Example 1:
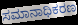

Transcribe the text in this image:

ಸಮಾನಾಧಿಕರಣ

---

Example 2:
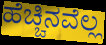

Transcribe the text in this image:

ಹೆಚ್ಚಿನವೆಲ್ಲ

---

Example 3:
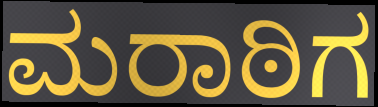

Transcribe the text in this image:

ಮರಾಠಿಗ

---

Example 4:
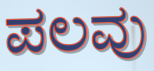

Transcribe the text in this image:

ಪಲವು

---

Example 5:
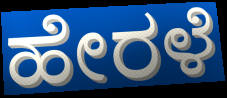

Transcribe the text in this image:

ಹೇರಳೆ